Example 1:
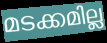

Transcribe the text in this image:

മടക്കമില്ല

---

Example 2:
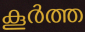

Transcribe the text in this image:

കൂർത്ത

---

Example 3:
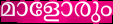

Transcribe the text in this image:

മാളോരും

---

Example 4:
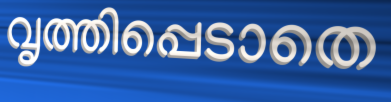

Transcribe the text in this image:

വൃത്തിപ്പെടാതെ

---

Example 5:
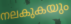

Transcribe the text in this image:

നലകുകയും